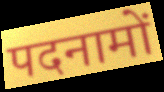
पदनामों